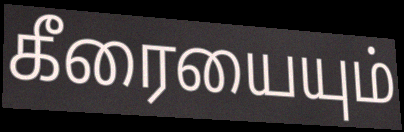
கீரையையும்